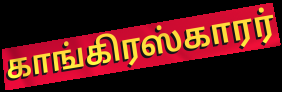
காங்கிரஸ்காரர்